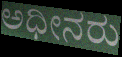
ಅಧೀನರು